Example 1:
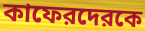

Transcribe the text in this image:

কাফেরদেরকে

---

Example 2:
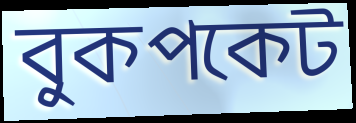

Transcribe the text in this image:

বুকপকেট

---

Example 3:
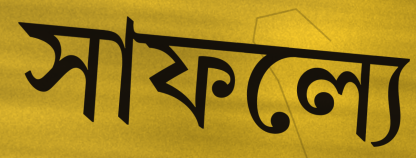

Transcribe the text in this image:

সাফল্যে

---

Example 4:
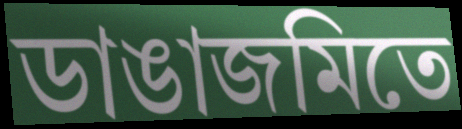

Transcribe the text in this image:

ডাঙাজমিতে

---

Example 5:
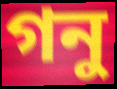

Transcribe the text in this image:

গনু